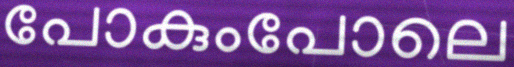
പോകുംപോലെ